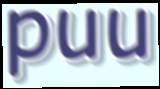
puu